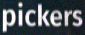
pickers